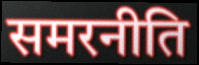
समरनीति